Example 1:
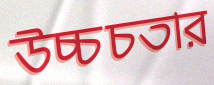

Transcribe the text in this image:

উচ্চচতার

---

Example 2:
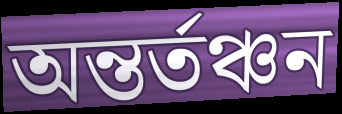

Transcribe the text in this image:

অন্তর্তঞ্চন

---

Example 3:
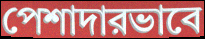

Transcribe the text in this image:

পেশাদারভাবে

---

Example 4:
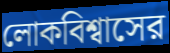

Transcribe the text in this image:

লোকবিশ্বাসের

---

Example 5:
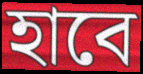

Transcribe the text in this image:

হাবে